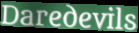
Daredevils